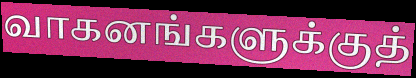
வாகனங்களுக்குத்